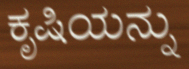
ಕೃಷಿಯನ್ನು